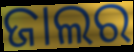
ଜାଲର